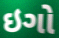
ઇગો